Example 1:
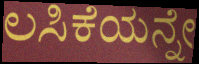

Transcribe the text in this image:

ಲಸಿಕೆಯನ್ನೇ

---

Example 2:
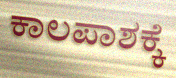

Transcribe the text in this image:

ಕಾಲಪಾಶಕ್ಕೆ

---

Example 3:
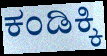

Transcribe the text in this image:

ಕಂಡಿಕ್ಕಿ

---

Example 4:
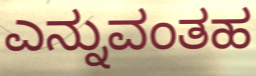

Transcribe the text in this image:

ಎನ್ನುವಂತಹ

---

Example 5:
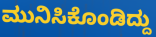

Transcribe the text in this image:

ಮುನಿಸಿಕೊಂಡಿದ್ದು